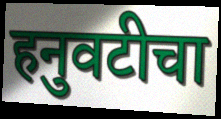
हनुवटीचा